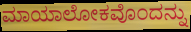
ಮಾಯಾಲೋಕವೊಂದನ್ನು